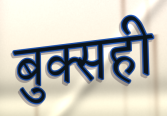
बुक्सही